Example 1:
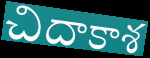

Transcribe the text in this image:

చిదాకాశ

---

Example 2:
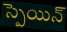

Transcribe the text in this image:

స్పెయిన్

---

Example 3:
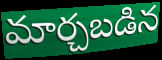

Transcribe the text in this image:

మార్చబడిన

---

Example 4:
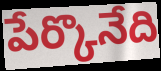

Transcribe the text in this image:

పేర్కొనేది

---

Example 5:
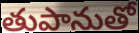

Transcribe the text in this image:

తుపానుతో